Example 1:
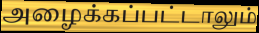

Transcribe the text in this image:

அழைக்கப்பட்டாலும்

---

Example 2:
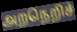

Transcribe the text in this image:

அறநெறிச்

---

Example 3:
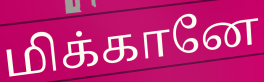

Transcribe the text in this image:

மிக்கானே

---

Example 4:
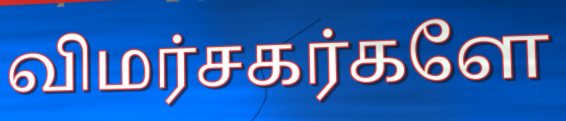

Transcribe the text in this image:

விமர்சகர்களே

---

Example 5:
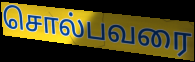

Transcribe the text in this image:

சொல்பவரை